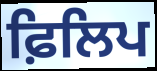
ਫ਼ਿਲਿਪ